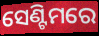
ସେଣ୍ଟିମରେ